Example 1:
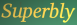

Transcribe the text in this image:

Superbly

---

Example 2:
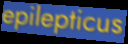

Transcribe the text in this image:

epilepticus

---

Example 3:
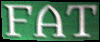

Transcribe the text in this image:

FAT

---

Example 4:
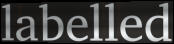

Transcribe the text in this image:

labelled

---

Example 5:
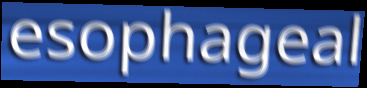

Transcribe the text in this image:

esophageal